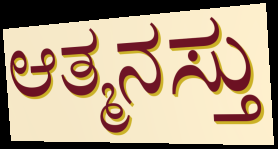
ಆತ್ಮನಸ್ತು